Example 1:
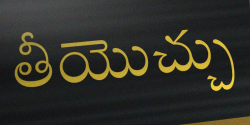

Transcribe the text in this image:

తీయొచ్చు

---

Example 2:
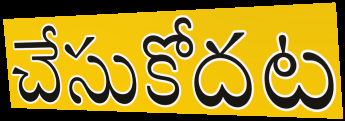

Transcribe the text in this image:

చేసుకోదట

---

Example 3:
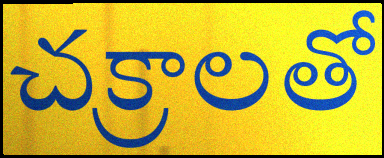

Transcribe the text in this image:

చక్రాలతో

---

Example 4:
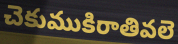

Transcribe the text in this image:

చెకుముకిరాతివలె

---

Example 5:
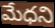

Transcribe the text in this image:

మేధని